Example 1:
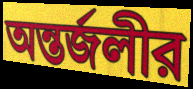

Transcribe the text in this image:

অন্তর্জলীর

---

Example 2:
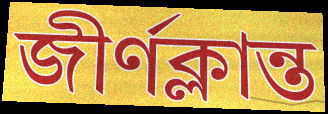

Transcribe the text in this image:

জীর্ণক্লান্ত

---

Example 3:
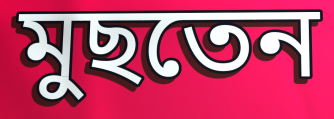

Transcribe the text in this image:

মুছতেন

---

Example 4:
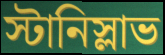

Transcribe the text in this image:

স্টানিস্লাভ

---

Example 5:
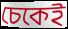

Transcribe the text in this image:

চেকেই